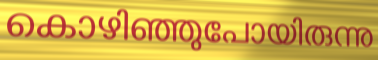
കൊഴിഞ്ഞുപോയിരുന്നു